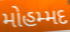
મોહમ્મદ